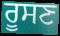
ਰੂਸਣ